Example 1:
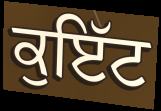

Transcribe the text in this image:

ਕੁਇੱਟ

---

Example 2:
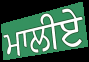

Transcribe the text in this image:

ਮਾਲੀਏ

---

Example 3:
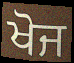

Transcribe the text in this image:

ਖੋਜ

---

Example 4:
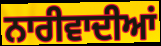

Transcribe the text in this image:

ਨਾਰੀਵਾਦੀਆਂ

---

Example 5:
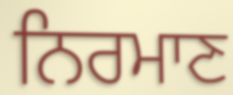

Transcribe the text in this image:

ਨਿਰਮਾਣ